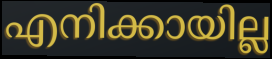
എനിക്കായില്ല